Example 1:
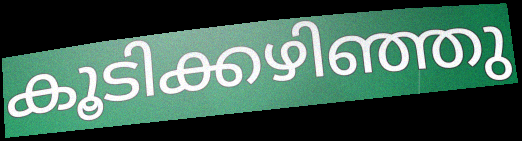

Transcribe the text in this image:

കൂടിക്കഴിഞ്ഞു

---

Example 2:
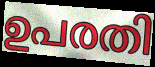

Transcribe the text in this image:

ഉപരതി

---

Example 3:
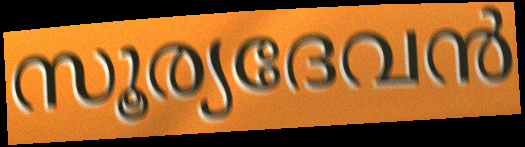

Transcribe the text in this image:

സൂര്യദേവൻ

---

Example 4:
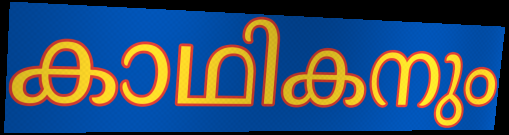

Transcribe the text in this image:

കാഥികനും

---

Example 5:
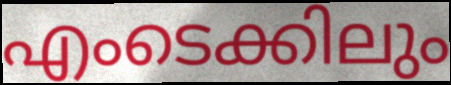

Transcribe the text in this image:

എംടെക്കിലും